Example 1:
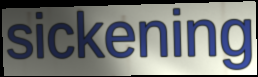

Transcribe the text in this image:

sickening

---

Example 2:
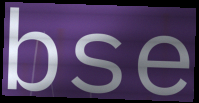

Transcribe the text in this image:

bse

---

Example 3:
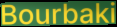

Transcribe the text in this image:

Bourbaki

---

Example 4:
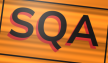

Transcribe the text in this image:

SQA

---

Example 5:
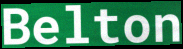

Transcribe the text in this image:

Belton